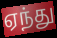
ஏந்து